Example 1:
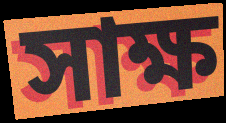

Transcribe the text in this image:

সাক্ষ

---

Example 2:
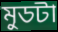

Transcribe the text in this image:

মুডটা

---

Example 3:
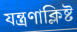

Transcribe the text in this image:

যন্ত্রণাক্লিষ্ট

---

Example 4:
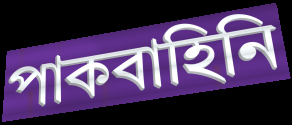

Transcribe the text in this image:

পাকবাহিনি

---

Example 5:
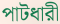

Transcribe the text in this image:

পাটধারী